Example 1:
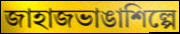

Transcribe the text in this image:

জাহাজভাঙাশিল্পে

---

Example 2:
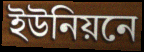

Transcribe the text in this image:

ইউনিয়নে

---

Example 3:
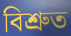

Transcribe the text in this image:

বিশ্রুত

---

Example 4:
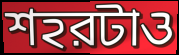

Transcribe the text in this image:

শহরটাও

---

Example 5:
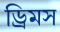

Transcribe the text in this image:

ড্রিমস